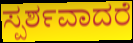
ಸ್ಪರ್ಶವಾದರೆ